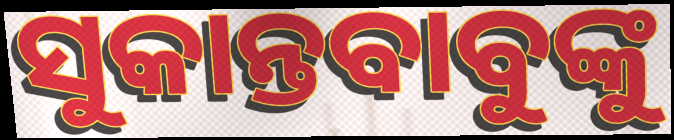
ସୁକାନ୍ତବାବୁଙ୍କୁ